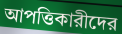
আপত্তিকারীদের